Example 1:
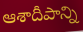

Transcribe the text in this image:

ఆశాదీపాన్ని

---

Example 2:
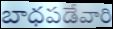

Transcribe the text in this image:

బాధపడేవారి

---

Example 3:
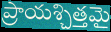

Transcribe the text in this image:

ప్రాయశ్చిత్తమై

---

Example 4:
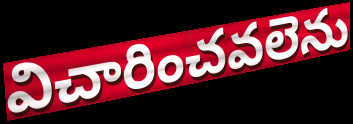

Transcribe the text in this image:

విచారించవలెను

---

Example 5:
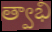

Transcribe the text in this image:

త్వాభి